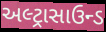
અલ્ટ્રાસાઉન્ડ